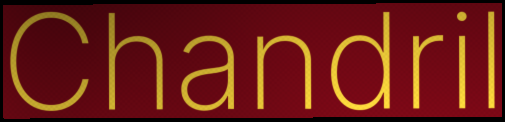
Chandril